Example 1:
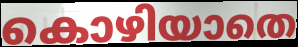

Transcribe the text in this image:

കൊഴിയാതെ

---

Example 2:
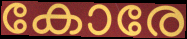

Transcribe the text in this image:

കോരേ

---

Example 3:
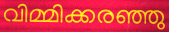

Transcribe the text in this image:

വിമ്മിക്കരഞ്ഞു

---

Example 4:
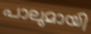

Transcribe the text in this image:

പാലുമായി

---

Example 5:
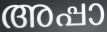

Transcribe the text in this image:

അപ്പാ